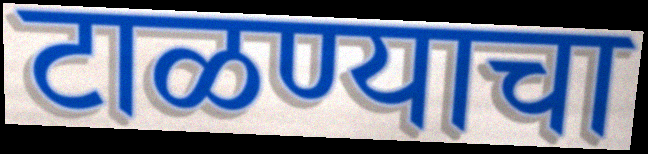
टाळण्याचा